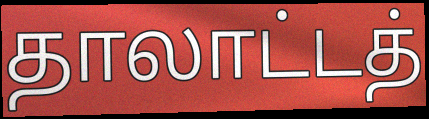
தாலாட்டத்